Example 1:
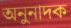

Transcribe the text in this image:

অনুনাদক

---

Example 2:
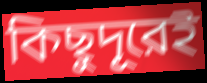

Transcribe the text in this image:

কিছুদূরেই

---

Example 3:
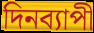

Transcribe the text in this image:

দিনব্যাপী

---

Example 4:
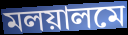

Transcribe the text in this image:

মলয়ালমে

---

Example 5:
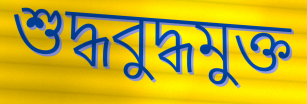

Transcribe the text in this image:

শুদ্ধবুদ্ধমুক্ত